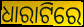
ଧାରାଟିରେ